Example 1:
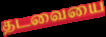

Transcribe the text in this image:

தடவையை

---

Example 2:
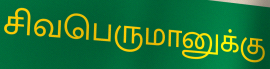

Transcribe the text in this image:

சிவபெருமானுக்கு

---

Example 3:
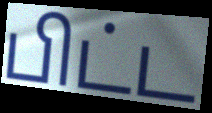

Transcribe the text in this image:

பிட்ட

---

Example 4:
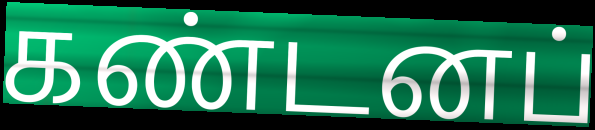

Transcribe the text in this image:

கண்டனப்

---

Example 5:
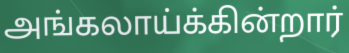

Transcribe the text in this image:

அங்கலாய்க்கின்றார்